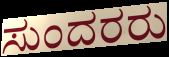
ಸುಂದರರು